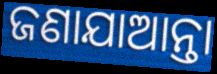
ଜଣାଯାଆନ୍ତା